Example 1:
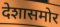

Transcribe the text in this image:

देशासमोर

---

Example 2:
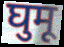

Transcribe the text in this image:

घुमू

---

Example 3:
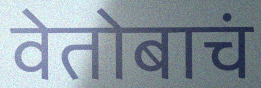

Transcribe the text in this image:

वेतोबाचं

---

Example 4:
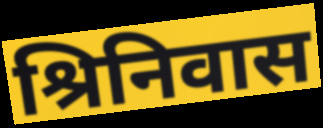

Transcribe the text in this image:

श्रिनिवास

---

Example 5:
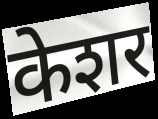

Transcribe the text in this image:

केशर